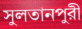
সুলতানপুরী